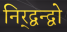
निर्द्वन्द्वो